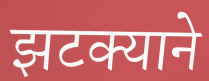
झटक्याने